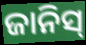
ଜାନିସ୍